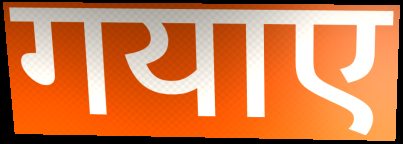
गयाए